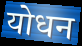
योधन